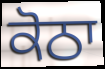
ਕੋਠਾ